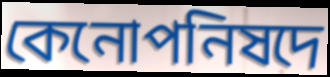
কেনোপনিষদে